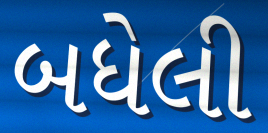
બધેલી